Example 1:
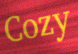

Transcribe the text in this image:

Cozy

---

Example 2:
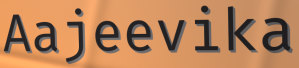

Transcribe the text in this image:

Aajeevika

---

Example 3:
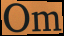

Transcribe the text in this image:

Om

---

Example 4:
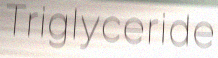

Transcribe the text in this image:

Triglyceride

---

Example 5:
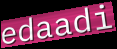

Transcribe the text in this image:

edaadi